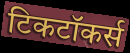
टिकटॉकर्स